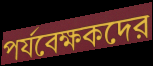
পর্যবেক্ষকদের